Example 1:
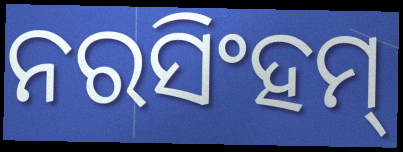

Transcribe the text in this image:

ନରସିଂହମ୍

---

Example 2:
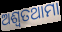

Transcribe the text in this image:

ଅଶ୍ୱତଥାମା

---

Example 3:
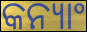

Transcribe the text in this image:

କନ୍ୟାଂ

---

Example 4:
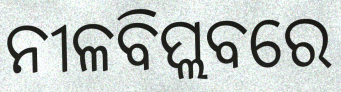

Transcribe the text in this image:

ନୀଳବିପ୍ଲବରେ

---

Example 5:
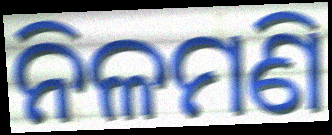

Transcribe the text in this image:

ନିଳମଣି